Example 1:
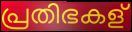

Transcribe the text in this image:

പ്രതിഭകള്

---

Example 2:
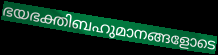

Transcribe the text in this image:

ഭയഭക്തിബഹുമാനങ്ങളോടെ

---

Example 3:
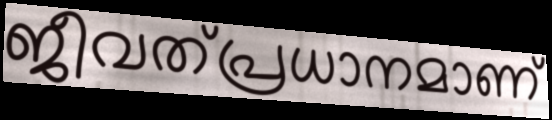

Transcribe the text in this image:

ജീവത്പ്രധാനമാണ്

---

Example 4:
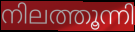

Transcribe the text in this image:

നിലത്തൂന്നി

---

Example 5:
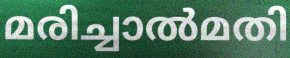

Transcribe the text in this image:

മരിച്ചാൽമതി